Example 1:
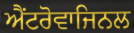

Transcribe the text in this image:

ਐਂਟਰੋਵਾਜਿਨਲ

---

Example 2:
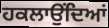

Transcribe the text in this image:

ਹਕਲਾਉਂਦਿਆਂ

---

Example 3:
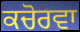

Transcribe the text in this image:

ਕਚੋਰਵਾ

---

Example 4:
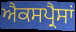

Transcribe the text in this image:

ਐਕਸਪ੍ਰੈਸਾਂ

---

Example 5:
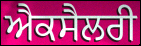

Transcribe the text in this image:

ਐਕਸੈਲਰੀ